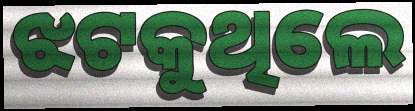
ଝଟକୁଥିଲେ